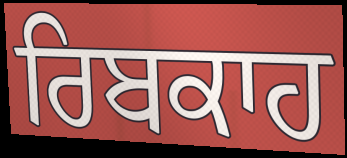
ਰਿਬਕਾਹ